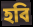
হবি